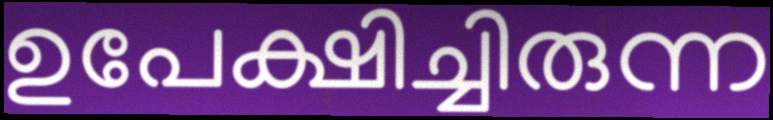
ഉപേക്ഷിച്ചിരുന്ന